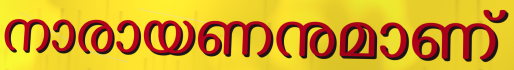
നാരായണനുമാണ്